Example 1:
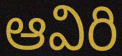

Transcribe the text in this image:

ఆవిరి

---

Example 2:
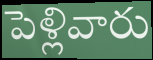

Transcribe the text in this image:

పెళ్లివారు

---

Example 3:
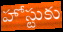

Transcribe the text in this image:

హోస్టుకు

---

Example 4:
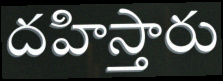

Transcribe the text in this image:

దహిస్తారు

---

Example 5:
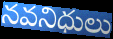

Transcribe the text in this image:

నవనిధులు